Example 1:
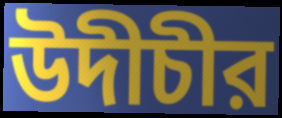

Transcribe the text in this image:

উদীচীর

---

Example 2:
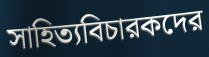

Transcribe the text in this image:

সাহিত্যবিচারকদের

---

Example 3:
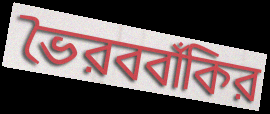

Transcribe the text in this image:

ভৈরববাঁকির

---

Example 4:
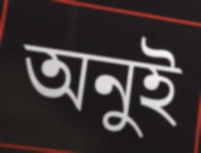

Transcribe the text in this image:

অনুই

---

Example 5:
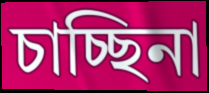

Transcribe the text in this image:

চাচ্ছিনা